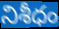
నిశీధం